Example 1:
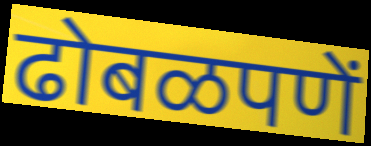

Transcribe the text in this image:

ढोबळपणें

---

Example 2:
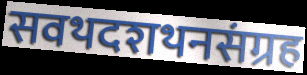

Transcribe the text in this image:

सवथदशथनसंग्रह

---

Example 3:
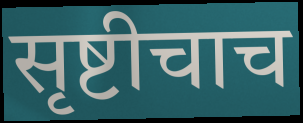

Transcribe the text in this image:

सृष्टीचाच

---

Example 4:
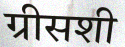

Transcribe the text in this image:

ग्रीसशी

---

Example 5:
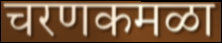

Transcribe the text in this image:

चरणकमळा